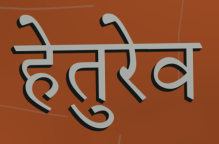
हेतुरेव